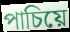
পাচিয়ে